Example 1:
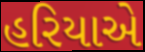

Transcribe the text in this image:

હરિયાએ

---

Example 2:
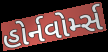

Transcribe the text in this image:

હોર્નવોર્મ્સ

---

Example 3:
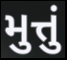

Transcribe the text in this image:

મુત્તું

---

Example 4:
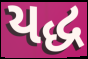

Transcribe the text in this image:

યદ્ધ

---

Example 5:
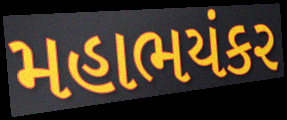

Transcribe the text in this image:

મહાભયંકર